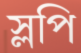
স্লপি